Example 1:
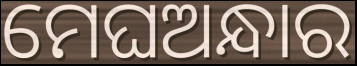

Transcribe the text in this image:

ମେଘଅନ୍ଧାର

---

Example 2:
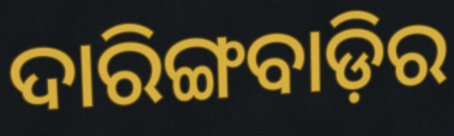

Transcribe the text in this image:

ଦାରିଙ୍ଗବାଡ଼ିର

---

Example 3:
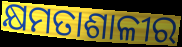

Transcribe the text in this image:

କ୍ଷମତାଶାଳୀର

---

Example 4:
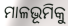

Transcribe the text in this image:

ମାଳଭୂମିକୁ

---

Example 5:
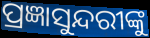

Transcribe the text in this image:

ପ୍ରଜ୍ଞାସୁନ୍ଦରୀଙ୍କୁ